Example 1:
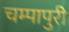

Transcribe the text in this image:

चम्पापुरी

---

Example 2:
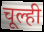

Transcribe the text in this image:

चूल्ही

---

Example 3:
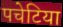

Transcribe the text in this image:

पचेटिया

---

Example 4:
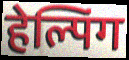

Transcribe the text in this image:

हेल्पिंग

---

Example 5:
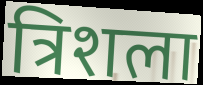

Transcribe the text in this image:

त्रिशला